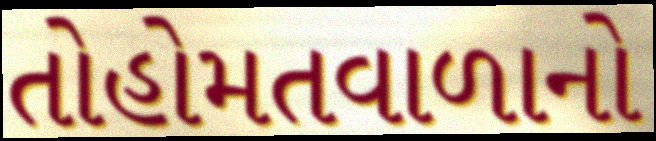
તોહોમતવાળાનો